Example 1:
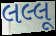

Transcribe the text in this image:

લલ્લૂ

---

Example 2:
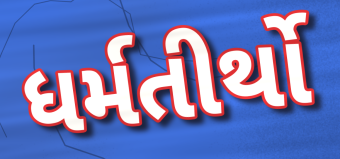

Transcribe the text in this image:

ધર્મતીર્થો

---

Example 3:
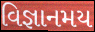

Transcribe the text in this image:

વિજ્ઞાનમય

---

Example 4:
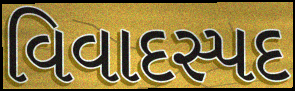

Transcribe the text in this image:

વિવાદસ્પદ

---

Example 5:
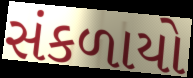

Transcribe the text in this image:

સંકળાયો